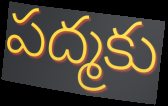
పద్మకు